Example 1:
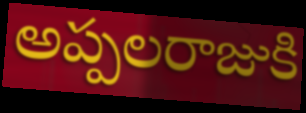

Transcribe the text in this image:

అప్పలరాజుకి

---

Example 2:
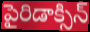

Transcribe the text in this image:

పైరిడాక్సిన్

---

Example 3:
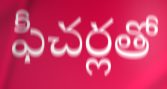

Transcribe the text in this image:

ఫీచర్లతో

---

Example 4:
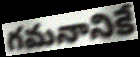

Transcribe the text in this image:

గమనానికే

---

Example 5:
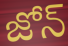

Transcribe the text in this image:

జోన్